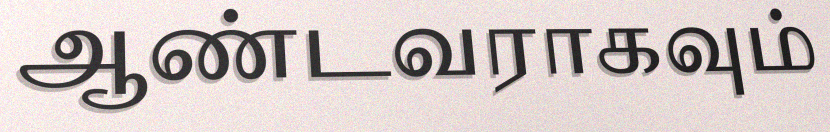
ஆண்டவராகவும்